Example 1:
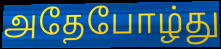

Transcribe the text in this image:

அதேபோழ்து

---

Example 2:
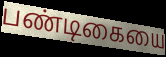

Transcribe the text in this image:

பண்டிகையை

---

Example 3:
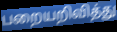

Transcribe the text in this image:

பறையறிவித்து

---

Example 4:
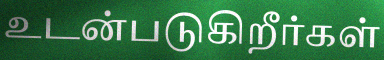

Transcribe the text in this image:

உடன்படுகிறீர்கள்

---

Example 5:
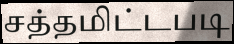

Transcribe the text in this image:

சத்தமிட்டபடி